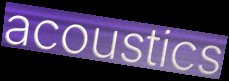
acoustics